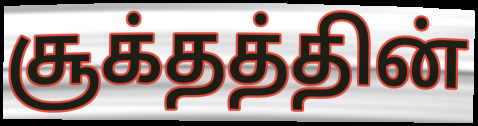
சூக்தத்தின்